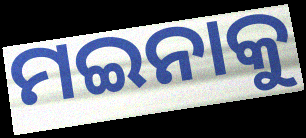
ମଇନାକୁ